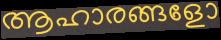
ആഹാരങ്ങളോ